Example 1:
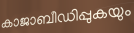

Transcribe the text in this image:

കാജാബീഡിപ്പുകയും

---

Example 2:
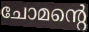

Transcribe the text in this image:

ചോമന്റെ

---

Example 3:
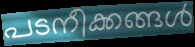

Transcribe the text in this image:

പടനീക്കങ്ങൾ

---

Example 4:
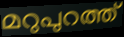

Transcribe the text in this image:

മറുപുറത്ത്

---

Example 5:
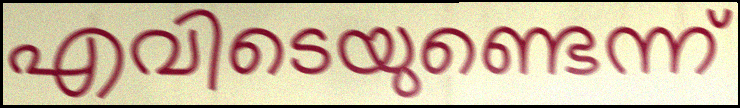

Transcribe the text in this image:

എവിടെയുണ്ടെന്ന്